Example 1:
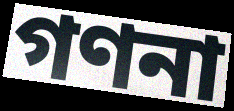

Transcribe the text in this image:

গণনা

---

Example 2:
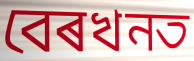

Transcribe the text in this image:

বেৰখনত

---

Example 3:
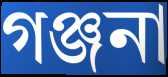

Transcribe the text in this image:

গঞ্জনা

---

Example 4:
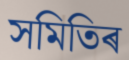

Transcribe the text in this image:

সমিতিৰ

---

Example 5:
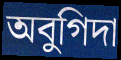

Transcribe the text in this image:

অবুগিদা